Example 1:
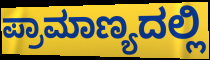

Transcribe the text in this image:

ಪ್ರಾಮಾಣ್ಯದಲ್ಲಿ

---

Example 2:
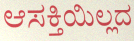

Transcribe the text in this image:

ಆಸಕ್ತಿಯಿಲ್ಲದ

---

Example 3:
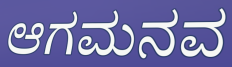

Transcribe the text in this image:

ಆಗಮನವ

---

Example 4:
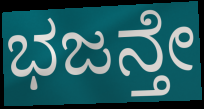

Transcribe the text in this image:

ಭಜನ್ತೇ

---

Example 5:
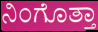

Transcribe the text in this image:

ನಿಂಗೊತ್ತಾ